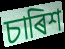
চাৰিশ